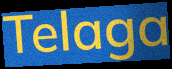
Telaga